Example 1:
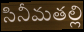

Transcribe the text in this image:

సినీమతల్లి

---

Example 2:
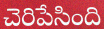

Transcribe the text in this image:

చెరిపేసింది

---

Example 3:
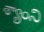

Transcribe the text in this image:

శ్యాంని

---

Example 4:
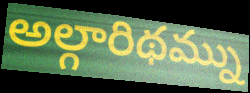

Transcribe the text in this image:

అల్గారిథమ్ను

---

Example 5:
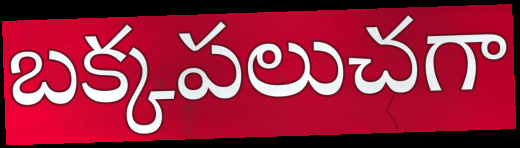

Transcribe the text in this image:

బక్కపలుచగా